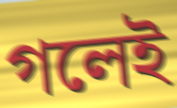
গলেই